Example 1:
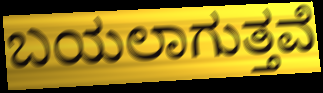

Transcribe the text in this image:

ಬಯಲಾಗುತ್ತವೆ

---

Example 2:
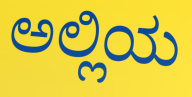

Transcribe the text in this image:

ಅಲ್ಲಿಯ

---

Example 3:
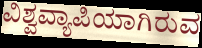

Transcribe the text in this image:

ವಿಶ್ವವ್ಯಾಪಿಯಾಗಿರುವ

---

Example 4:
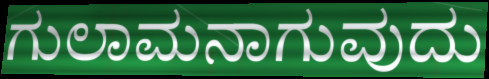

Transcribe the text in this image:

ಗುಲಾಮನಾಗುವುದು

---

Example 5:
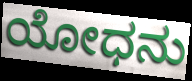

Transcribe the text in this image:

ಯೋಧನು